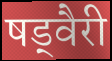
षड्वैरी